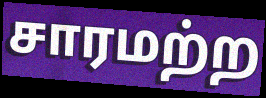
சாரமற்ற